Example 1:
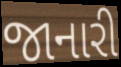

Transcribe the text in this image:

જાનારી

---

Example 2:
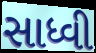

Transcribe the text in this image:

સાધ્વી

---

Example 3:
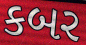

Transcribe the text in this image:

કબર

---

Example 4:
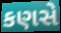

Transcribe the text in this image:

કણસે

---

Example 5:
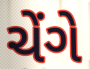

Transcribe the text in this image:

ચેંગે